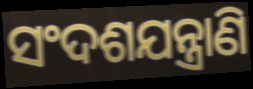
ସଂଦଶଯନ୍ତ୍ରାଣି